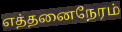
எத்தனைநேரம்